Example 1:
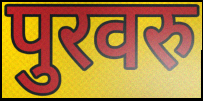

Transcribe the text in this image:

पुरवरु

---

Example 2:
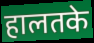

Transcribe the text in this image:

हालतके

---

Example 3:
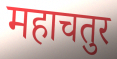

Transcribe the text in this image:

महाचतुर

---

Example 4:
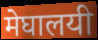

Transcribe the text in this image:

मेघालयी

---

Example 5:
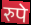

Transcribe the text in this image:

रुपे